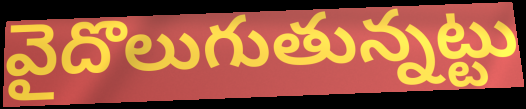
వైదొలుగుతున్నట్టు